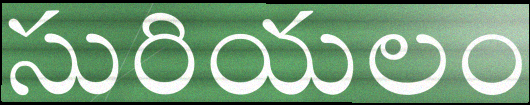
సురియలం